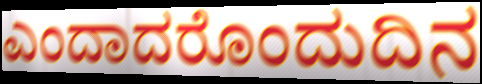
ಎಂದಾದರೊಂದುದಿನ